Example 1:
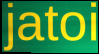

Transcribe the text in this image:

jatoi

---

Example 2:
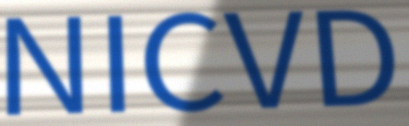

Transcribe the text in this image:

NICVD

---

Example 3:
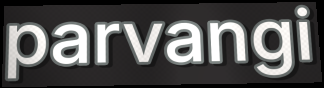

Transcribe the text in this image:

parvangi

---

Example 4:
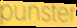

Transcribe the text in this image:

punster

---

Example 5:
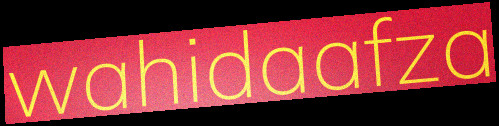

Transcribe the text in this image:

wahidaafza